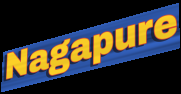
Nagapure